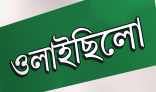
ওলাইছিলো